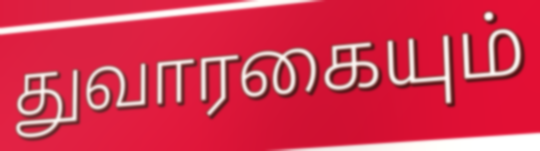
துவாரகையும்